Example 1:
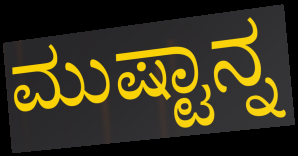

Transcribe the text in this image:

ಮುಷ್ಟಾನ್ನ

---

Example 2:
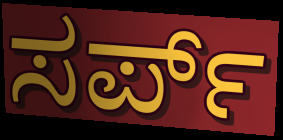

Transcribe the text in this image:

ಸರ್ಪ್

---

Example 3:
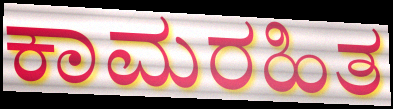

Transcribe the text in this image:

ಕಾಮರಹಿತ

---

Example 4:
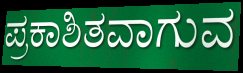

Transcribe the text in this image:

ಪ್ರಕಾಶಿತವಾಗುವ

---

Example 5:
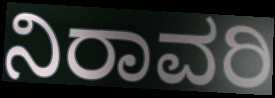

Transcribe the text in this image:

ನಿರಾವರಿ